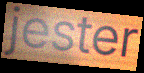
jester